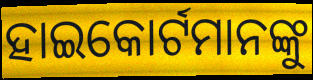
ହାଇକୋର୍ଟମାନଙ୍କୁ